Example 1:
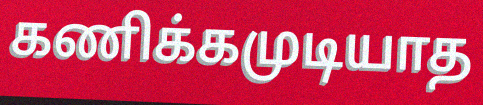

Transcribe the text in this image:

கணிக்கமுடியாத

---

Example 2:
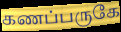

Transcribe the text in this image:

கணப்பருகே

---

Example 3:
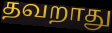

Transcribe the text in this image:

தவறாது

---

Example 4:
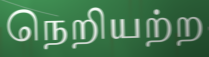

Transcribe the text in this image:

நெறியற்ற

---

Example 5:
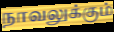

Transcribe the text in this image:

நாவலுக்கும்